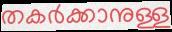
തകർക്കാനുള്ള